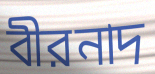
বীরনাদ